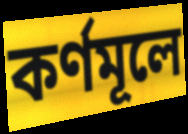
কর্ণমূলে